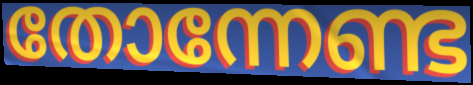
തോന്നേണ്ട